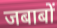
जबाबों